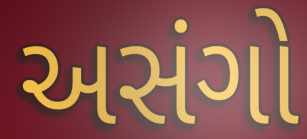
અસંગો